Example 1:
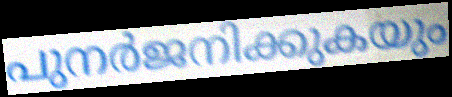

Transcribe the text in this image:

പുനർജനിക്കുകയും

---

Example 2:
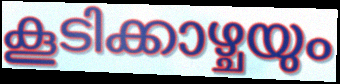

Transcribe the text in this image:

കൂടിക്കാഴ്ചയും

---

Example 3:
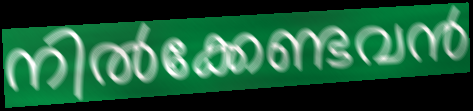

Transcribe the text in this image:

നിൽക്കേണ്ടവൻ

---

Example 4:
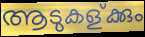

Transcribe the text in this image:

ആടുകള്ക്കും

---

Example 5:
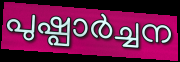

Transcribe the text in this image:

പുഷ്പാർച്ചന